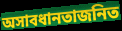
অসাবধানতাজনিত